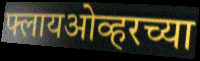
फ्लायओव्हरच्या